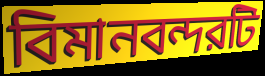
বিমানবন্দরটি